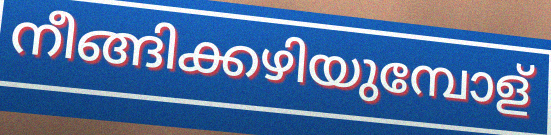
നീങ്ങിക്കഴിയുമ്പോള്